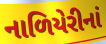
નાળિયેરીનાં